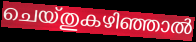
ചെയ്തുകഴിഞ്ഞാൽ